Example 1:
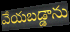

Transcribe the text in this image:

వేయబడ్డాను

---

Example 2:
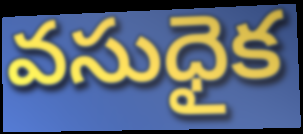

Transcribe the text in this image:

వసుధైక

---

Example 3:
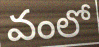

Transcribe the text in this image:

వంలో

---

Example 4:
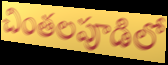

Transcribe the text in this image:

చింతలపూడిలో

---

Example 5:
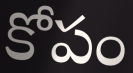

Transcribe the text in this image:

కోపం